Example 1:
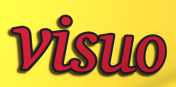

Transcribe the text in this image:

visuo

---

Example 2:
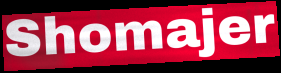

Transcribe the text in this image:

Shomajer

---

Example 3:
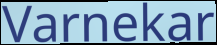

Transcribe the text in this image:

Varnekar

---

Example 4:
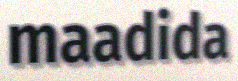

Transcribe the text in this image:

maadida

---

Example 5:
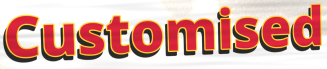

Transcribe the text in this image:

Customised